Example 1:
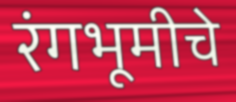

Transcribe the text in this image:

रंगभूमीचे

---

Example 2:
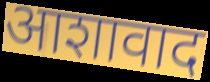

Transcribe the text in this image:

आशावाद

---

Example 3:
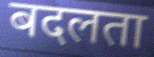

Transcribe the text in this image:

बदलता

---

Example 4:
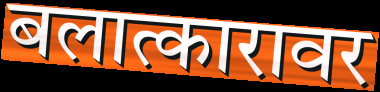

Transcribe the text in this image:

बलात्कारावर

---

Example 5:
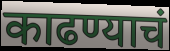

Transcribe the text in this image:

काढण्याचं